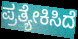
ಪ್ರತ್ಯೇಕಿಸಿದೆ